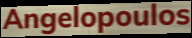
Angelopoulos